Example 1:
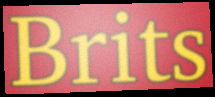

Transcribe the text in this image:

Brits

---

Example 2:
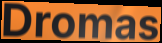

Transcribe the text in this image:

Dromas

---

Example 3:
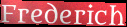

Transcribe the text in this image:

Frederich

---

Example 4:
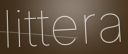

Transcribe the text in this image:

littera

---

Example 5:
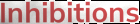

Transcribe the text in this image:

Inhibitions